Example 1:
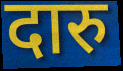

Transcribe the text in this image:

दारु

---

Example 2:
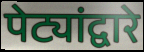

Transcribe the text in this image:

पेट्यांद्वारे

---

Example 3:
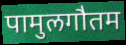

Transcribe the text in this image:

पामुलगौतम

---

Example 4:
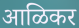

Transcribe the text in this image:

आळिकर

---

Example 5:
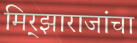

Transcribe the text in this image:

मिर्झाराजांचा